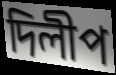
দিলীপ